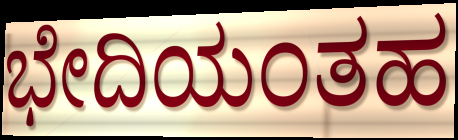
ಭೇದಿಯಂತಹ